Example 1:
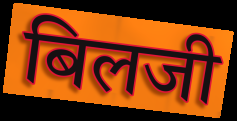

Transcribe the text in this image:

बिलजी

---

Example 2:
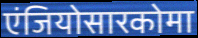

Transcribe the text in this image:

एंजियोसारकोमा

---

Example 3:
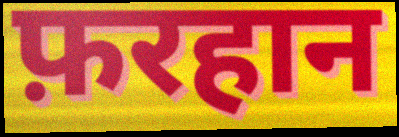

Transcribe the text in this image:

फ़रहान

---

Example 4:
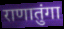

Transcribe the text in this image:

राणातुंगा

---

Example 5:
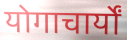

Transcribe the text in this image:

योगाचार्यों